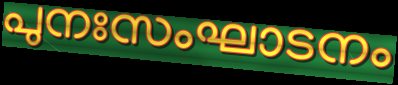
പുനഃസംഘാടനം